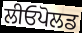
ਲੀਓਪੋਲਡ